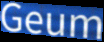
Geum